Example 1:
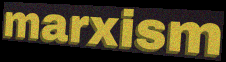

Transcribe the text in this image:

marxism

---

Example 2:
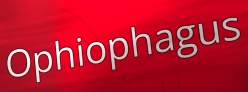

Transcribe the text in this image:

Ophiophagus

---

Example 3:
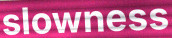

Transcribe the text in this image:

slowness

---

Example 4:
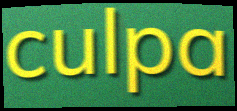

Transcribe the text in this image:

culpa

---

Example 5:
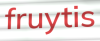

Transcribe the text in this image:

fruytis